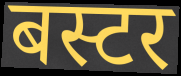
बस्टर